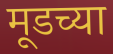
मूडच्या